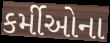
કર્મીઓના